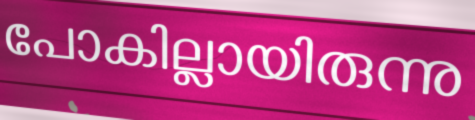
പോകില്ലായിരുന്നു